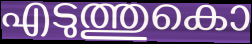
എടുത്തുകൊ